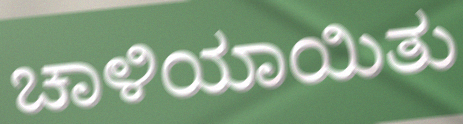
ಚಾಳಿಯಾಯಿತು